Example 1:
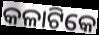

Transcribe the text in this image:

କଳାଟିକେ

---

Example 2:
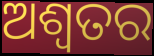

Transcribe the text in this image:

ଅଶ୍ୱତର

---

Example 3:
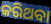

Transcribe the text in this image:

କରିଥବା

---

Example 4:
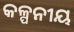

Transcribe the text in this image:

କଳ୍ପନୀୟ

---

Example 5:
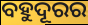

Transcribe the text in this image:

ବହୁଦୂରର